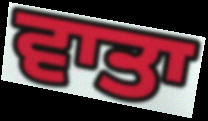
ਵਾਤਾ